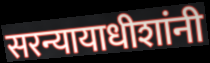
सरन्यायाधीशांनी